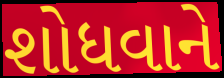
શોધવાને